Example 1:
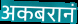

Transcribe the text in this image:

अकबरानं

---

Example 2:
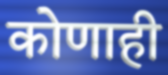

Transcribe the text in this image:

कोणाही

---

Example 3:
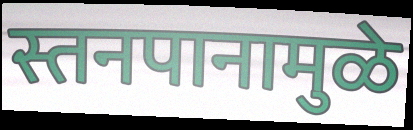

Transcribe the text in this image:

स्तनपानामुळे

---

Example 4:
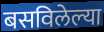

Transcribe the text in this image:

बसविलेल्या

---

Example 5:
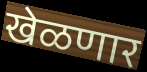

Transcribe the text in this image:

खेळणार